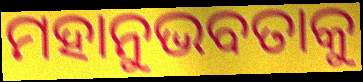
ମହାନୁଭବତାକୁ